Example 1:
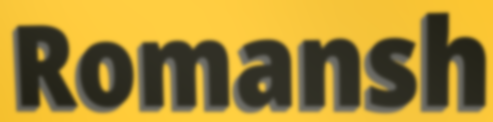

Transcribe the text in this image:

Romansh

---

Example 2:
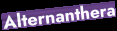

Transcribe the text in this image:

Alternanthera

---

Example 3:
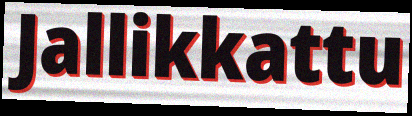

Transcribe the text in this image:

Jallikkattu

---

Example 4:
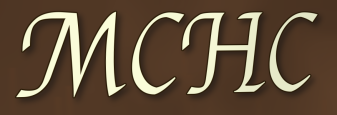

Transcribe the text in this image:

MCHC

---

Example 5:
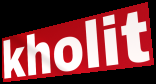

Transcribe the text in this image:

kholit